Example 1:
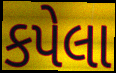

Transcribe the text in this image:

કપેલા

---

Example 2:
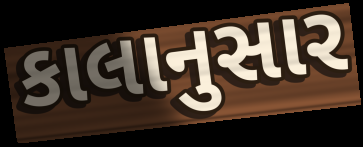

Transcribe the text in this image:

કાલાનુસાર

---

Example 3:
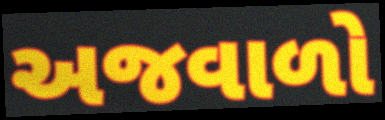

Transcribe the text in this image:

અજવાળો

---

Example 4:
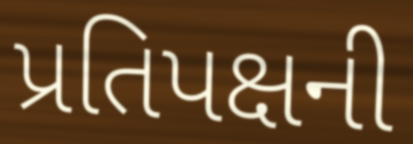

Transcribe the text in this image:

પ્રતિપક્ષની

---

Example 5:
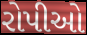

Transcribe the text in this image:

રોપીઓ